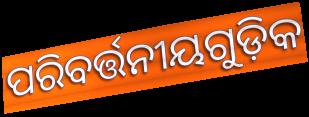
ପରିବର୍ତ୍ତନୀୟଗୁଡ଼ିକ